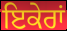
ਇਕੇਰਾਂ